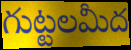
గుట్టలమీద